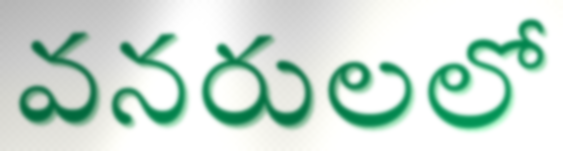
వనరులలో